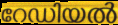
റേഡിയൽ